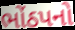
ભોંઠપનો